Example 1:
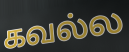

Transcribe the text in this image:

கவல்ல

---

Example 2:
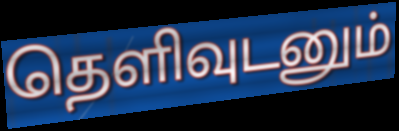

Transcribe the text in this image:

தெளிவுடனும்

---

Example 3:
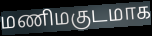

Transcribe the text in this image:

மணிமகுடமாக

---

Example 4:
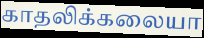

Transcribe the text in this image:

காதலிக்கலையா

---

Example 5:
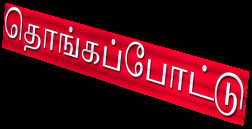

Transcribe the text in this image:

தொங்கப்போட்டு